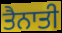
ਤੈਨਾਤੀ